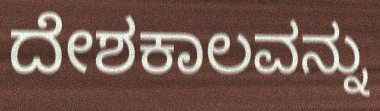
ದೇಶಕಾಲವನ್ನು